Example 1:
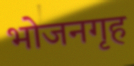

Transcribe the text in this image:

भोजनगृह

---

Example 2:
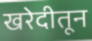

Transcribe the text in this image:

खरेदीतून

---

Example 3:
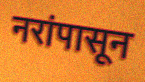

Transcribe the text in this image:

नरांपासून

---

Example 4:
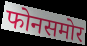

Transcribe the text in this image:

फोनसमोर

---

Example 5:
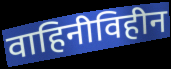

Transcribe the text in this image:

वाहिनीविहीन